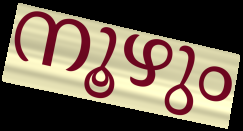
നൂഴും